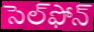
సెల్‌ఫోన్